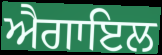
ਐਗਾਇਲ